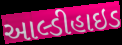
આલ્ડીહાઇડ